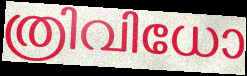
ത്രിവിധോ